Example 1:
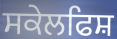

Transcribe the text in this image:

ਸਕੇਲਫਿਸ਼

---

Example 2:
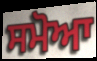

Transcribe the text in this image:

ਸਮੋਆ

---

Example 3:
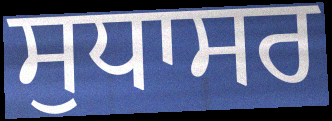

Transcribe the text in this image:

ਸੁਧਾਸਰ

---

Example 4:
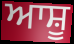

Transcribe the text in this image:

ਆਸ਼ੂ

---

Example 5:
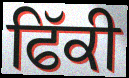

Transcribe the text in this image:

ਫਿੱਕੀ